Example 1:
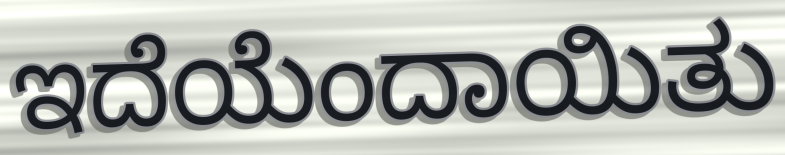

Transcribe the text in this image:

ಇದೆಯೆಂದಾಯಿತು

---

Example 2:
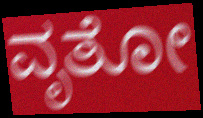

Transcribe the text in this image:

ವೃತೋ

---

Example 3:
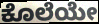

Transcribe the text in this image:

ಕೊಲೆಯೇ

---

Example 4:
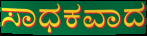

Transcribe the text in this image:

ಸಾಧಕವಾದ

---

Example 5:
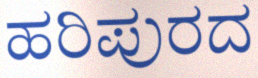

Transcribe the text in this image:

ಹರಿಪುರದ